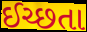
ઈચ્છતા